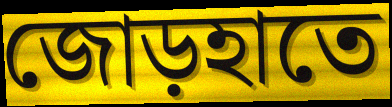
জোড়হাতে